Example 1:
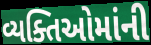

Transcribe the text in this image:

વ્યક્તિઓમાંની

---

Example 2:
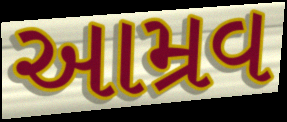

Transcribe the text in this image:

આમ્રવ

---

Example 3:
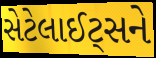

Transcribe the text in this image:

સેટેલાઈટ્સને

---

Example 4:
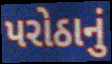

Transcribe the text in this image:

પરોઠાનું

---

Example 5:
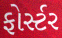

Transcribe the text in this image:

ફોર્સ્ટર